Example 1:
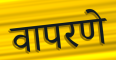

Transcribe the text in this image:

वापरणे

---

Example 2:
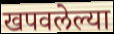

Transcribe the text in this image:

खपवलेल्या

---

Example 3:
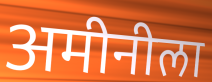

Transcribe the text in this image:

अमीनीला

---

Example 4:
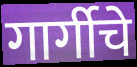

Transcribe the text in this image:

गार्गीचे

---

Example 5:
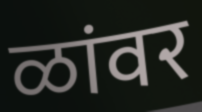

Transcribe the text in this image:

ळांवर